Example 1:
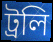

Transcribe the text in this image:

ট্রলি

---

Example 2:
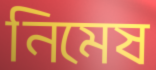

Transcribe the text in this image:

নিমেষ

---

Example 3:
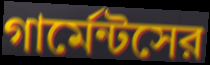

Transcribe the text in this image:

গার্মেন্টসের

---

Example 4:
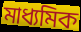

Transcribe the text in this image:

মাধ্যমিক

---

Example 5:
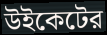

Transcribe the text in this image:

উইকেটের